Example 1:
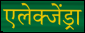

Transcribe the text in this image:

एलेक्जेंड्रा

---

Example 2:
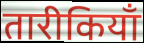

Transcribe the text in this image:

तारीकियाँ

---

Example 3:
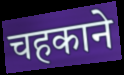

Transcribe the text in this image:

चहकाने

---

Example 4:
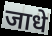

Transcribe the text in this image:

जाधे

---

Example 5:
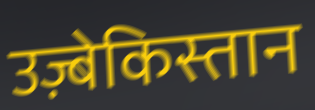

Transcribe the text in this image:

उज़्बेकिस्तान